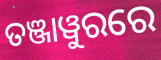
ତଞ୍ଜାୱୁରରେ